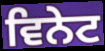
ਵਿਨੇਟ